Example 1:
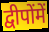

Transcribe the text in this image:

द्वीपोंमें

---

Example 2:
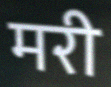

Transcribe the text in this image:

मरी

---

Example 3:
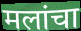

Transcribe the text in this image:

मलांचा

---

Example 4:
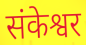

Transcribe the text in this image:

संकेश्वर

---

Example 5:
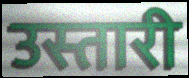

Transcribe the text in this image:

उस्तारी